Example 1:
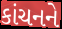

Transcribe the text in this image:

કાંચનને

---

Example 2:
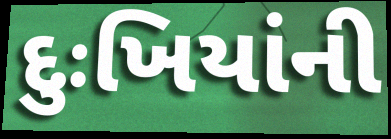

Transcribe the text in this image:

દુઃખિયાંની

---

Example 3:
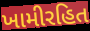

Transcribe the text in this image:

ખામીરહિત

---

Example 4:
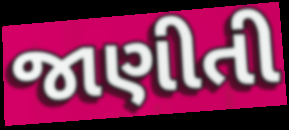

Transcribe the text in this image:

જાણીતી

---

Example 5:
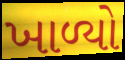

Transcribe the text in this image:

ખાળ્યો